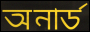
অনার্ড